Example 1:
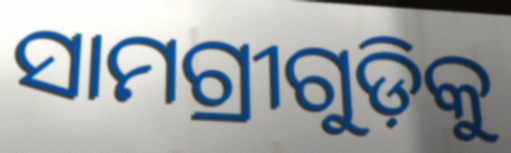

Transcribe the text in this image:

ସାମଗ୍ରୀଗୁଡ଼ିକୁ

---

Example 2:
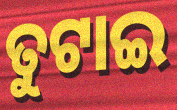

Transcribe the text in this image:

ତୁଟାଇ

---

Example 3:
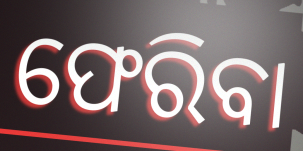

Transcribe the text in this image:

ଫେରିବା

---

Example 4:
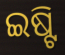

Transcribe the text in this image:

ଇଷ୍ଟି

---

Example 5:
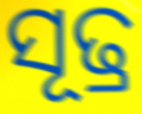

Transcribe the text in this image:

ସୂଢ୍ର